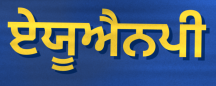
ਏਯੂਐਨਪੀ